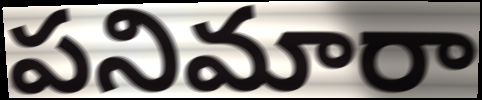
పనిమారా